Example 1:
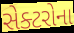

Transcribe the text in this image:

સેક્ટરોના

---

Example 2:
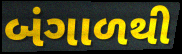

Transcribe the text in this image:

બંગાળથી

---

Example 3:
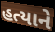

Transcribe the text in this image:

હત્યાને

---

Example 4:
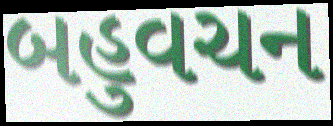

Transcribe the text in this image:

બહુવચન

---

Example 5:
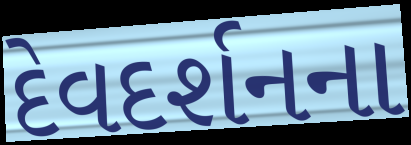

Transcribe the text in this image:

દેવદર્શનના